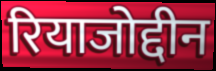
रियाजोद्दीन